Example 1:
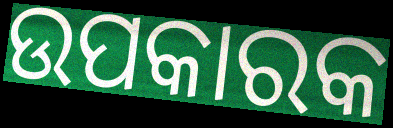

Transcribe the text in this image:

ଉପକାରକ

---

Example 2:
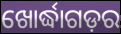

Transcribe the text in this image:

ଖୋର୍ଦ୍ଧାଗଡ଼ର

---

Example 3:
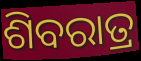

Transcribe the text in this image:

ଶିବରାତ୍ର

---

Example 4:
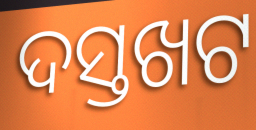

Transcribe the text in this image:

ଦସ୍ତଖଟ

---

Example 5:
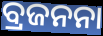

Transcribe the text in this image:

ବ୍ରଜନନା